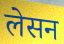
लेसन